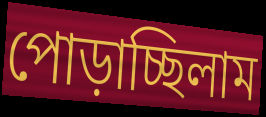
পোড়াচ্ছিলাম